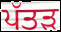
ਪੱਤਡ਼